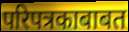
परिपत्रकाबाबत